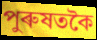
পুৰুষতকৈ